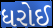
ધરોઈ